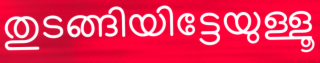
തുടങ്ങിയിട്ടേയുള്ളൂ